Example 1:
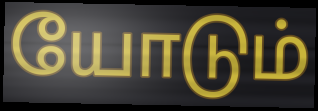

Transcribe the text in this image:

யோடும்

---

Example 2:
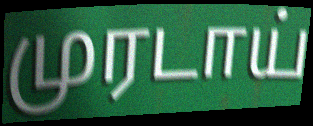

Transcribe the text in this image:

முரடாய்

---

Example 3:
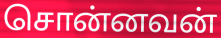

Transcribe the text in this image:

சொன்னவன்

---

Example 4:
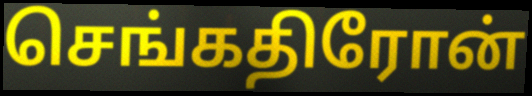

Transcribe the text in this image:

செங்கதிரோன்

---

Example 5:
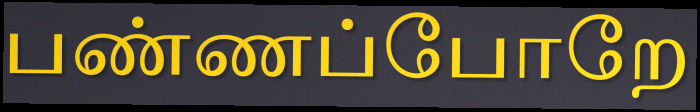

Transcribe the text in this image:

பண்ணப்போறே